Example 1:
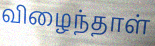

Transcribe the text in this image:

விழைந்தாள்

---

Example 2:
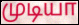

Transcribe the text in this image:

முடியா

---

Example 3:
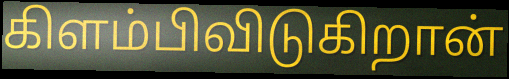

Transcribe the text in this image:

கிளம்பிவிடுகிறான்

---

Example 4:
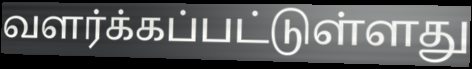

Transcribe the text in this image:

வளர்க்கப்பட்டுள்ளது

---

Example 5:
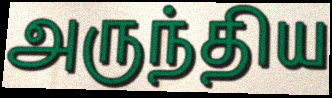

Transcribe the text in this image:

அருந்திய